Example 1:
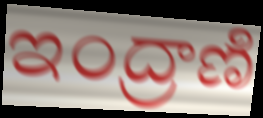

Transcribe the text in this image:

ఇంద్రాణి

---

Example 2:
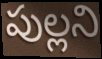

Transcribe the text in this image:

పుల్లని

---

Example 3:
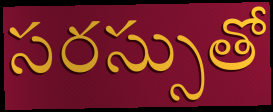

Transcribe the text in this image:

సరస్సుతో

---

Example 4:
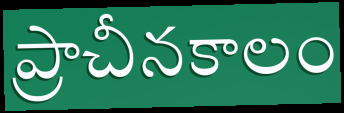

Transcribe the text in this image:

ప్రాచీనకాలం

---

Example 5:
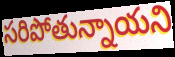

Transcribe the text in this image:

సరిపోతున్నాయని